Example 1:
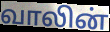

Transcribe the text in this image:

வாலின்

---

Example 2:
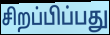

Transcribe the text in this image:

சிறப்பிப்பது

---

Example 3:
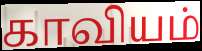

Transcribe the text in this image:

காவியம்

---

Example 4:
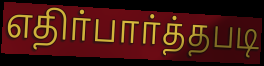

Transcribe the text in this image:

எதிர்பார்த்தபடி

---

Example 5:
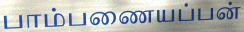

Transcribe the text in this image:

பாம்பணையப்பன்